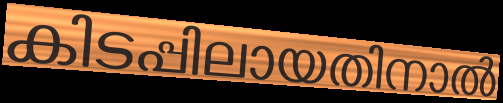
കിടപ്പിലായതിനാൽ